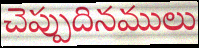
చెప్పుదినములు